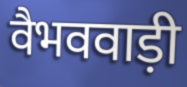
वैभववाड़ी